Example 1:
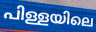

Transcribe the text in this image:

പിള്ളയിലെ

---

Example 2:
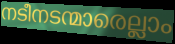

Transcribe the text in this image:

നടീനടന്മാരെല്ലാം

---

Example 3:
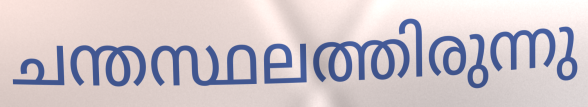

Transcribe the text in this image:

ചന്തസ്ഥലത്തിരുന്നു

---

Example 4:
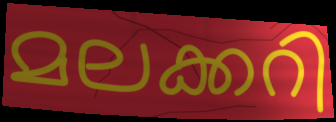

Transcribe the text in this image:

മലക്കറി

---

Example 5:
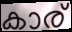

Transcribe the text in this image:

കാര്